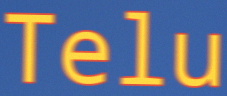
Telu